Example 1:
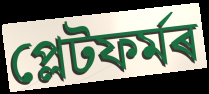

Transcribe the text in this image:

প্লেটফৰ্মৰ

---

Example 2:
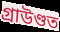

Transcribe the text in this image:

গ্ৰাউণ্ডত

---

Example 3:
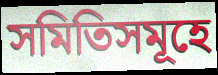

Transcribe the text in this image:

সমিতিসমূহে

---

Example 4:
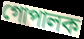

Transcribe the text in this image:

গোপালক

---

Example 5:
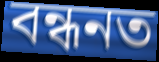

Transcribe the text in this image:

বন্ধনত